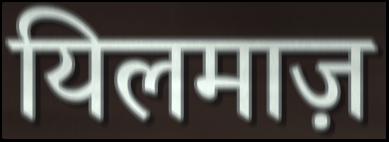
यिलमाज़